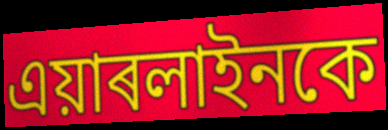
এয়াৰলাইনকে